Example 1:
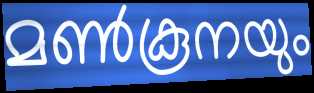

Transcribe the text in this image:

മൺകൂനയും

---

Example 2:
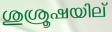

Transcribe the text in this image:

ശുശ്രൂഷയില്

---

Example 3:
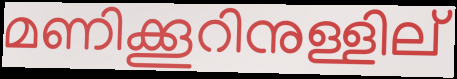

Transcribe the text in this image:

മണിക്കൂറിനുള്ളില്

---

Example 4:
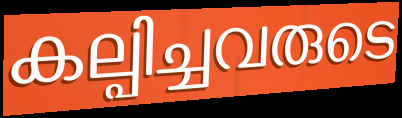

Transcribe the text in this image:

കല്പിച്ചവരുടെ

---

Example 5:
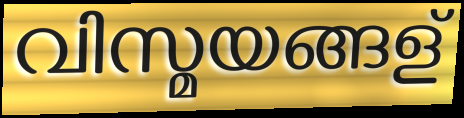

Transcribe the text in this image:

വിസ്മയങ്ങള്